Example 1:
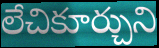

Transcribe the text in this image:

లేచికూర్చుని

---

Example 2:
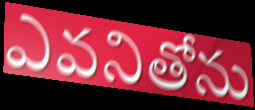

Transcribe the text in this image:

ఎవనితోను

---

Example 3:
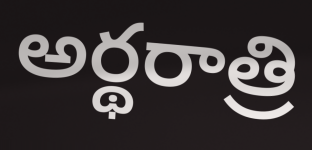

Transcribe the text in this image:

అర్థరాత్రి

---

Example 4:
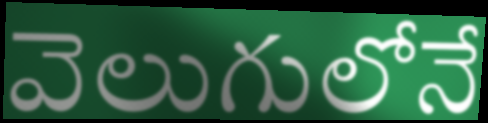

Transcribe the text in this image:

వెలుగులోనే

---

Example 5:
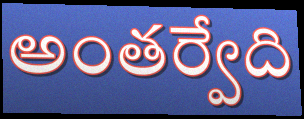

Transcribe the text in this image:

అంతర్వేది